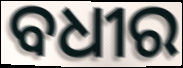
ବଧୀର